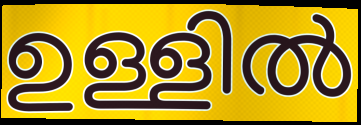
ഉള്ളിൽ